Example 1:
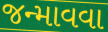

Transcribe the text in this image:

જન્માવવા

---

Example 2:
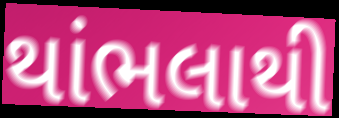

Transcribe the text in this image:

થાંભલાથી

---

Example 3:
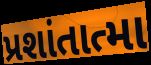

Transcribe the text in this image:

પ્રશાંતાત્મા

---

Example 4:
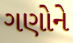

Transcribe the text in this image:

ગણોને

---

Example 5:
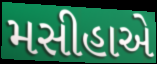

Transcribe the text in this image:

મસીહાએ